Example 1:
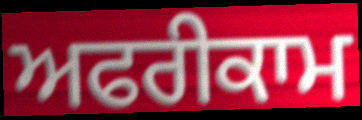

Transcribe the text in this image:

ਅਫਰੀਕਾਮ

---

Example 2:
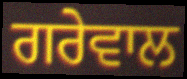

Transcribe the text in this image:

ਗਰੇਵਾਲ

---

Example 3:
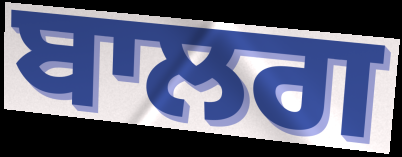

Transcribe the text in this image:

ਬਾਲਗ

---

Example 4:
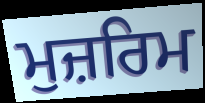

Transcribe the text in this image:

ਮੁਜ਼ਰਿਮ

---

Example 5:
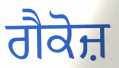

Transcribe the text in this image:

ਗੈਕੋਜ਼